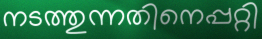
നടത്തുന്നതിനെപ്പറ്റി